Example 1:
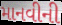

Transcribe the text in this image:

માનવીની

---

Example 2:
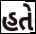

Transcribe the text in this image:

હતે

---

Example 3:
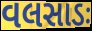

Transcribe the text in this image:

વલસાડઃ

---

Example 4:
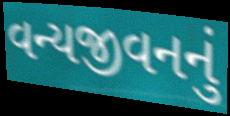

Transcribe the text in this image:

વન્યજીવનનું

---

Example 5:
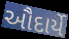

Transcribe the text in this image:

ઔદાર્યે